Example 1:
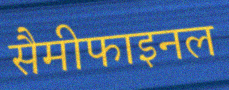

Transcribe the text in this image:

सैमीफाइनल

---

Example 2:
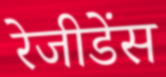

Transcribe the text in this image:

रेजीडेंस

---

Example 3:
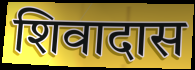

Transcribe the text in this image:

शिवादास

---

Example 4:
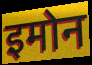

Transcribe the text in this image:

इमोन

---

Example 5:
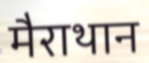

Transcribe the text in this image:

मैराथान